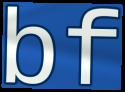
bf